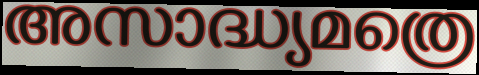
അസാദ്ധ്യമത്രെ